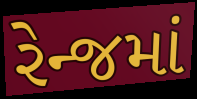
રેન્જમાં